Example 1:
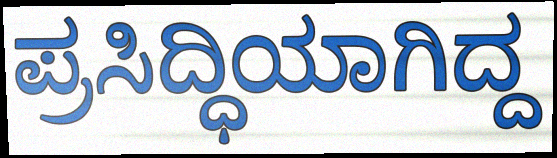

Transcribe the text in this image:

ಪ್ರಸಿದ್ಧಿಯಾಗಿದ್ದ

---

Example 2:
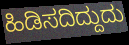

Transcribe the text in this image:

ಹಿಡಿಸದಿದ್ದುದು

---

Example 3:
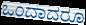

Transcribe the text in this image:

ಒಂದಾದರೂ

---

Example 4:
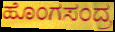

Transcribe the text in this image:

ಹೊಂಗಸಂದ್ರ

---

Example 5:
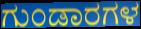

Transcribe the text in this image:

ಗುಂಡಾರಗಳ